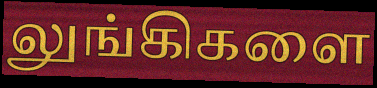
லுங்கிகளை